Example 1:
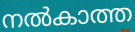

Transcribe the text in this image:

നൽകാത്ത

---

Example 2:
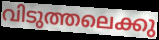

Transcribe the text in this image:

വിടുത്തലെക്കു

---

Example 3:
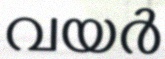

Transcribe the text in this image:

വയർ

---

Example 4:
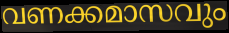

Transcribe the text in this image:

വണക്കമാസവും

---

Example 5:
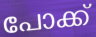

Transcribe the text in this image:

പോക്ക്